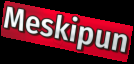
Meskipun